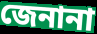
জেনানা